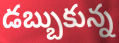
డబ్బుకున్న